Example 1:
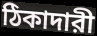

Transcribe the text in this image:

ঠিকাদারী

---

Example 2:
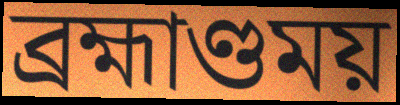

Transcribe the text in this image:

ব্রহ্মাণ্ডময়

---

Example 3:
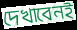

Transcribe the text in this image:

দেখাবেনই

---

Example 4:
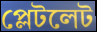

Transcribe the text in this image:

প্লেটলেট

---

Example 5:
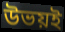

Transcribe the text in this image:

উভয়ই